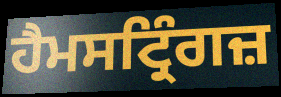
ਹੈਮਸਟ੍ਰਿੰਗਜ਼